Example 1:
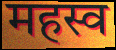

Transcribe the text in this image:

महस्व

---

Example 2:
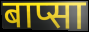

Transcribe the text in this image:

बाप्सा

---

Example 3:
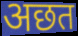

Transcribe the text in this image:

अछत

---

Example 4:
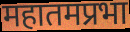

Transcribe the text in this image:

महातमप्रभा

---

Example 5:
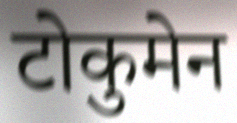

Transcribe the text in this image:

टोकुमेन